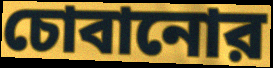
চোবানোর